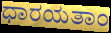
ಧಾರಯತಾಂ